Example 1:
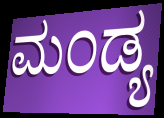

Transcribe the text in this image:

ಮಂಡ್ಯ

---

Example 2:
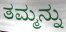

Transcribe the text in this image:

ತಮ್ಮನ್ನು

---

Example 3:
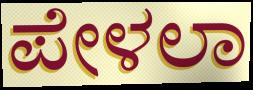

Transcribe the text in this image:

ಪೇಳಲಾ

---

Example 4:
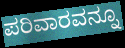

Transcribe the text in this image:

ಪರಿವಾರವನ್ನೂ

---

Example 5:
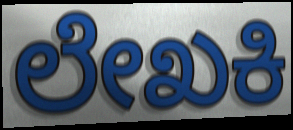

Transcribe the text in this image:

ಲೇಖಕಿ